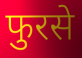
फुरसे